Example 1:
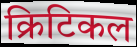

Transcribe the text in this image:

क्रिटिकल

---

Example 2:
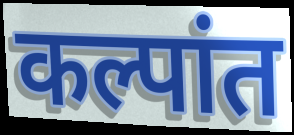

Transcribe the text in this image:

कल्पांत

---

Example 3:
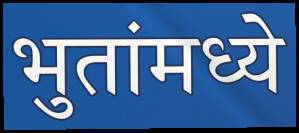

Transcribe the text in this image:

भुतांमध्ये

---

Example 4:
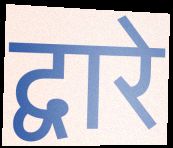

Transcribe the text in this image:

द्वारे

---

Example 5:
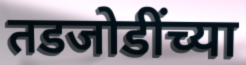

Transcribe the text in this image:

तडजोडींच्या